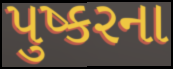
પુષ્કરના